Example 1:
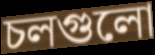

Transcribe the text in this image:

চলগুলো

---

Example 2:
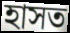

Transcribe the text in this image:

হাসত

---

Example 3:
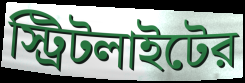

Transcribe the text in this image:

স্ট্রিটলাইটের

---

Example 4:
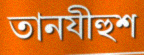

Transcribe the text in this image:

তানযীহুশ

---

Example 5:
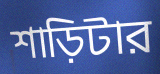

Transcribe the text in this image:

শাড়িটার